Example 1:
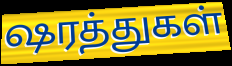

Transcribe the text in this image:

ஷரத்துகள்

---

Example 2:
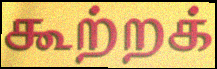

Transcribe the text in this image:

கூற்றக்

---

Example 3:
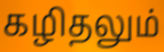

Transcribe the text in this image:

கழிதலும்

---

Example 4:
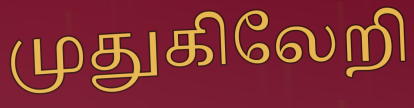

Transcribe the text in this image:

முதுகிலேறி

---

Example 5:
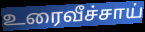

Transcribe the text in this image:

உரைவீச்சாய்